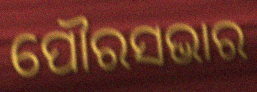
ପୌରସଭାର